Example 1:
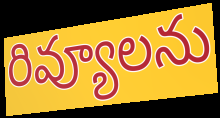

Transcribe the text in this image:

రివ్యూలను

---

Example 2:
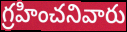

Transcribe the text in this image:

గ్రహించనివారు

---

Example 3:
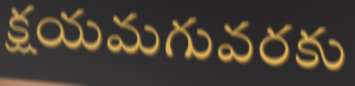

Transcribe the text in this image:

క్షయమగువరకు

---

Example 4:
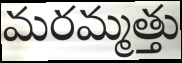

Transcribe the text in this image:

మరమ్మత్తు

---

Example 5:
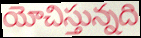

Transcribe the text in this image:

యోచిస్తున్నది